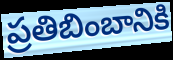
ప్రతిబింబానికి